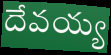
దేవయ్య